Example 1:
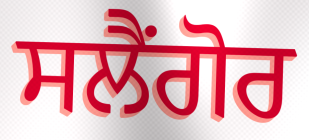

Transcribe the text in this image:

ਸਲੈਂਗੋਰ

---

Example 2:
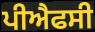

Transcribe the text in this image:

ਪੀਐਫਸੀ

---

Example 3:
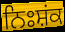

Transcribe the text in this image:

ਨਿਃਸ਼ਂਕ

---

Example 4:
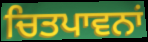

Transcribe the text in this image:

ਚਿਤਪਾਵਨਾਂ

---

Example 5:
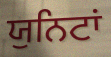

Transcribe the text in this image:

ਯੁਨਿਟਾਂ